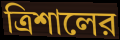
ত্রিশালের